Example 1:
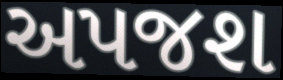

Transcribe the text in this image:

અપજશ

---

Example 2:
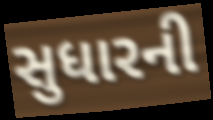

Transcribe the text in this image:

સુધારની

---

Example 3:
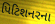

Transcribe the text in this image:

પિટિશનરના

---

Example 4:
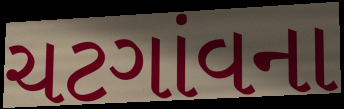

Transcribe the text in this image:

ચટગાંવના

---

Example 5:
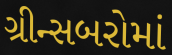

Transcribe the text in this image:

ગ્રીન્સબરોમાં